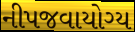
નીપજવાયોગ્ય